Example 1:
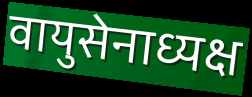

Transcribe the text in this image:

वायुसेनाध्यक्ष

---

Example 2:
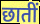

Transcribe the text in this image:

छातीं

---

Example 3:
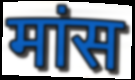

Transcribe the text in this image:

मांस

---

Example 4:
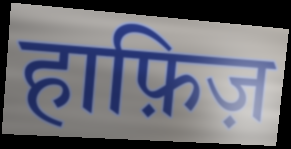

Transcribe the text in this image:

हाफ़िज़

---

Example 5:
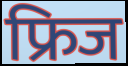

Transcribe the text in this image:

फ्रिज